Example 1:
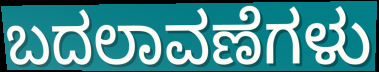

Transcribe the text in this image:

ಬದಲಾವಣೆಗಳು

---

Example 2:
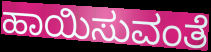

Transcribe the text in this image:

ಹಾಯಿಸುವಂತೆ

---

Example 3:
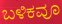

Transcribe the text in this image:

ಬಳಿಕವೂ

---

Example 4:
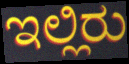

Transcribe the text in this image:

ಇಲ್ಲಿರು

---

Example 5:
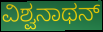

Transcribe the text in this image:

ವಿಶ್ವನಾಥನ್